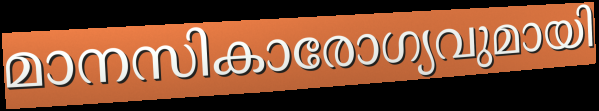
മാനസികാരോഗ്യവുമായി